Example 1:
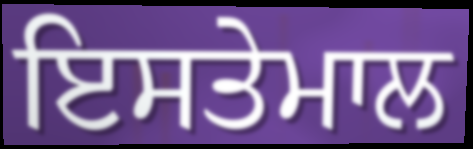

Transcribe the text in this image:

ਇਸਤੇਮਾਲ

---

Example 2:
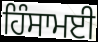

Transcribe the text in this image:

ਹਿੰਸਾਮਈ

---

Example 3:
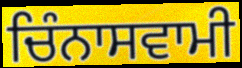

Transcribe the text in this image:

ਚਿੰਨਾਸਵਾਮੀ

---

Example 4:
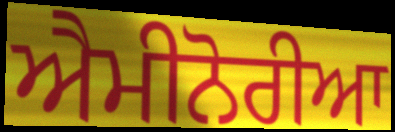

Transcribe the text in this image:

ਐਮੀਨੋਰੀਆ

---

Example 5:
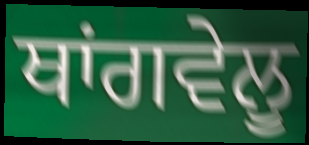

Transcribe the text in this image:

ਥਾਂਗਵੇਲੂ